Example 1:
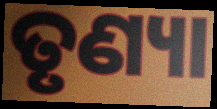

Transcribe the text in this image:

ତୃଣ୍ୟା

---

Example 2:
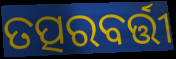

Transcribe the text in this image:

ତତ୍ପରବର୍ତ୍ତୀ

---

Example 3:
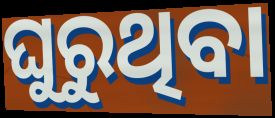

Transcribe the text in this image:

ଘୁରୁଥିବା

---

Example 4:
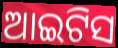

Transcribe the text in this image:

ଆଇଟିସ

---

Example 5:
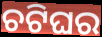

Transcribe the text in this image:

ଚଟିଘର